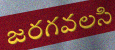
జరగవలసి